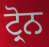
ਟ੍ਰੋਨ